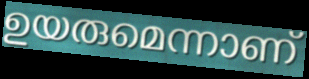
ഉയരുമെന്നാണ്